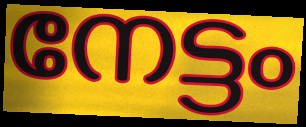
നേട്ടം